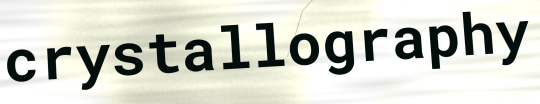
crystallography